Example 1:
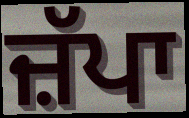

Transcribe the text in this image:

ਜ਼ੱਪਾ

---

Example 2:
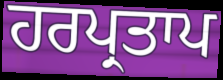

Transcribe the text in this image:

ਹਰਪ੍ਰਤਾਪ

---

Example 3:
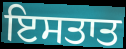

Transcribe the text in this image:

ਇਸਤਾਤ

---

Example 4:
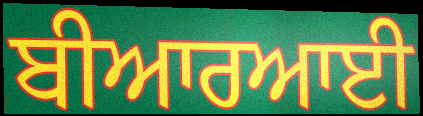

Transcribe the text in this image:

ਬੀਆਰਆਈ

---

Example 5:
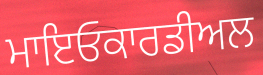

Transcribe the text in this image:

ਮਾਇਓਕਾਰਡੀਅਲ